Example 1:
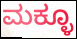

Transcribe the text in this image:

ಮಕ್ಳೂ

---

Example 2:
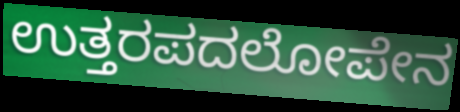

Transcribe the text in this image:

ಉತ್ತರಪದಲೋಪೇನ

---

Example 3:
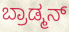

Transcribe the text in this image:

ಬ್ರಾಡ್ಮನ್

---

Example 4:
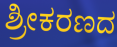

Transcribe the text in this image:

ಶ್ರೀಕರಣದ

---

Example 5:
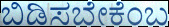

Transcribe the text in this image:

ಬಿಡಿಸಬೇಕೆಂಬ